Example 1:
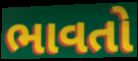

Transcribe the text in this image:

ભાવતો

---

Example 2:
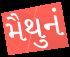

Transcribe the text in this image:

મૈથુનં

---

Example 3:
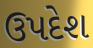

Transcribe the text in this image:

ઉપદેશ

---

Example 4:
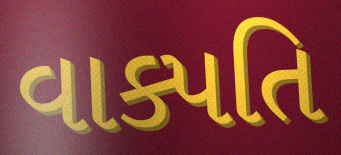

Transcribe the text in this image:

વાક્પતિ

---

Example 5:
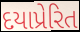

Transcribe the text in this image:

દયાપ્રેરિત